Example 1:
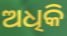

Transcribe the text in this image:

ଅଧିକି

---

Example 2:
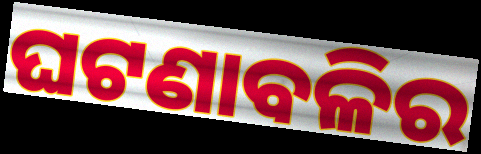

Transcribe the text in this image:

ଘଟଣାବଳିର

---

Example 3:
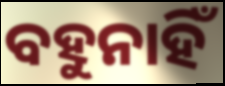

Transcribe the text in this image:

ବହୁନାହିଁ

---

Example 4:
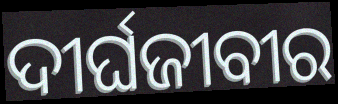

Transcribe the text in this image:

ଦୀର୍ଘଜୀବୀର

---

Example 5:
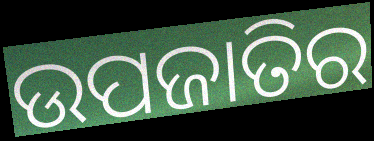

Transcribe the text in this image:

ଉପଜାତିର